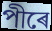
পীৰে